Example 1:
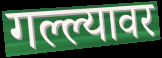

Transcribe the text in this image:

गल्ल्यावर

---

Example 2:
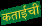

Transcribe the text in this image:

कताईची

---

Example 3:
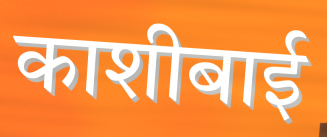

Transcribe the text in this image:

काशीबाई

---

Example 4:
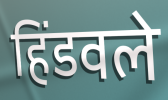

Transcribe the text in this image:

हिंडवले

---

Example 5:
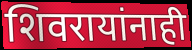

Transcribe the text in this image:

शिवरायांनाही